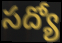
సద్యో